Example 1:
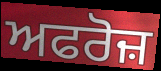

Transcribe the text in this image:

ਅਫਰੋਜ਼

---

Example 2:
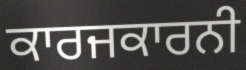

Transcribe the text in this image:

ਕਾਰਜਕਾਰਨੀ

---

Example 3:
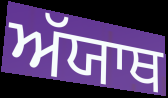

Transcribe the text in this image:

ਅੱਯਾਥ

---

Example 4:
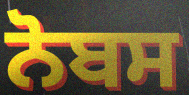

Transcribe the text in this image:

ਨੋਬਸ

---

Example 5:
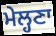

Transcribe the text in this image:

ਮੇਲ੍ਹਣਾ